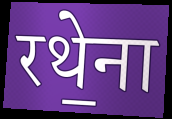
रथे॒ना